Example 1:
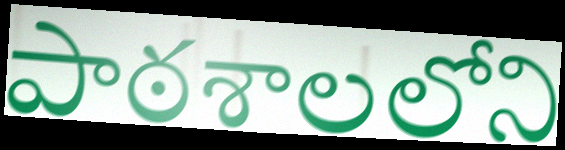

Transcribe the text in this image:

పాఠశాలలోని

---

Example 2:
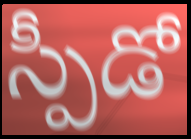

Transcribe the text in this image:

స్పీడో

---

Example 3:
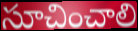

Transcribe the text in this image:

సూచించాలి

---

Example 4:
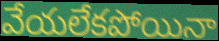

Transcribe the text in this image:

వేయలేకపోయినా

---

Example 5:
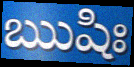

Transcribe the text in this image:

ఋషిః